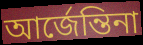
আর্জেন্তিনা